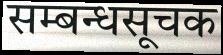
सम्बन्धसूचक